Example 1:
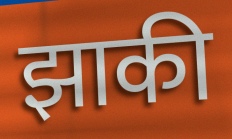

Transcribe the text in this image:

झाकी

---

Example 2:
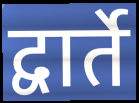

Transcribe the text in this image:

द्वार्ते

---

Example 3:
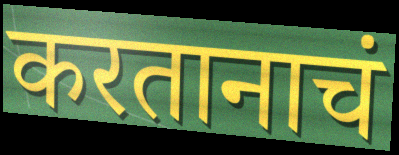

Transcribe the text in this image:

करतानाचं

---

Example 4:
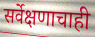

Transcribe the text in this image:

सर्वेक्षणाचाही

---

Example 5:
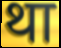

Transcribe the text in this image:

था